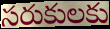
సరుకులకు